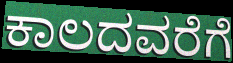
ಕಾಲದವರೆಗೆ